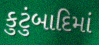
કુટુંબાદિમાં